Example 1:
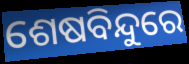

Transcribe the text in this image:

ଶେଷବିନ୍ଦୁରେ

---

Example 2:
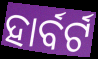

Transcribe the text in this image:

ହାର୍ବର୍ଟ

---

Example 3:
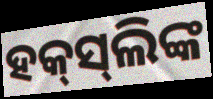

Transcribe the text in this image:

ହକ୍‌ସ୍‌ଲିଙ୍କ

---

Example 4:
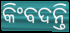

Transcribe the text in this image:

କିଂବଦନ୍ତି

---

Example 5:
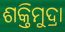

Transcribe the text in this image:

ଶକ୍ତିମୁଦ୍ରା